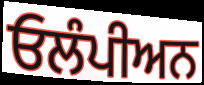
ਓਲੰਪੀਅਨ